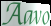
Aavo